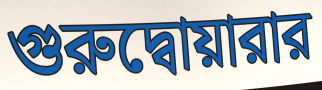
গুরুদ্বোয়ারার